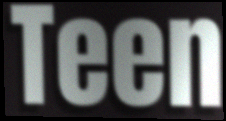
Teen